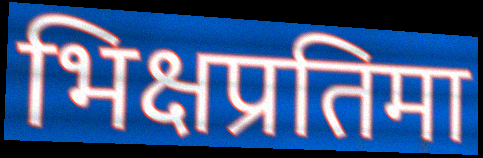
भिक्षप्रतिमा